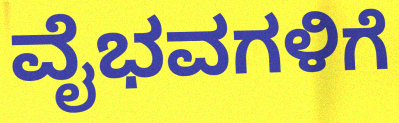
ವೈಭವಗಳಿಗೆ